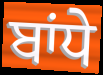
ਬਾਂਧੇ